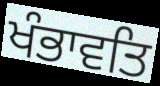
ਖੰਭਾਵਤਿ